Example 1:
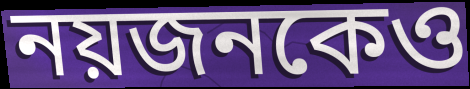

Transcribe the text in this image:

নয়জনকেও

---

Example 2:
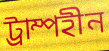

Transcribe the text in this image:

ট্রাম্পহীন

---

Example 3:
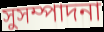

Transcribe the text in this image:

সুসম্পাদনা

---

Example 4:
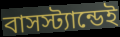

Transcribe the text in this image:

বাসস্ট্যান্ডেই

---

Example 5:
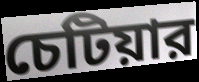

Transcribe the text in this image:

চেটিয়ার